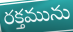
రక్తమును